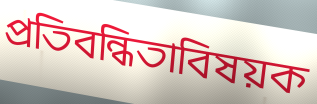
প্রতিবন্ধিতাবিষয়ক